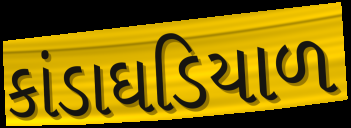
કાંડાઘડિયાળ